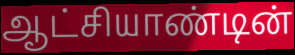
ஆட்சியாண்டின்